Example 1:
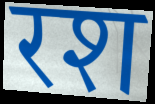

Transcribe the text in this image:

रश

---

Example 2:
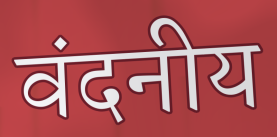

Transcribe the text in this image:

वंदनीय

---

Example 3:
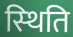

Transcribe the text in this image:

स्‍थिति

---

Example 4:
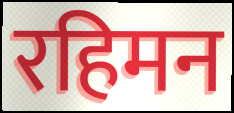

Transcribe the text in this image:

रहिमन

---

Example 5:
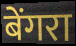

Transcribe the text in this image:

बेंगरा